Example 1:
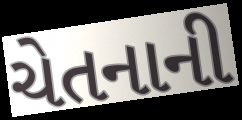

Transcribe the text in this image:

ચેતનાની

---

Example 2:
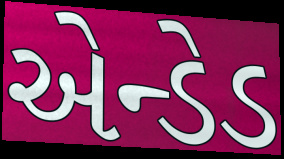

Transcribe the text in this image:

એન્ડેડ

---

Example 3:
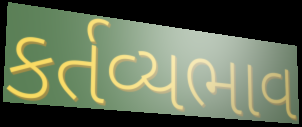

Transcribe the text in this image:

કર્તવ્યભાવ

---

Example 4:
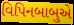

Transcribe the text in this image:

વિપિનબાબુએ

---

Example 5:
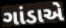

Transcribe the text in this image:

ગાંડાએ